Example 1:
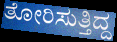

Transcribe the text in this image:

ತೋರಿಸುತ್ತಿದ್ದ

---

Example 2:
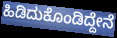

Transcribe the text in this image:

ಹಿಡಿದುಕೊಂಡಿದ್ದೇನೆ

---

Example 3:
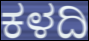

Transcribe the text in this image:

ಕಳದಿ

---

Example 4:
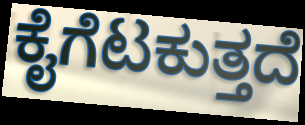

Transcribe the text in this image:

ಕೈಗೆಟಕುತ್ತದೆ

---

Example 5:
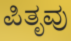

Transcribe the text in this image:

ಪಿತೃವು